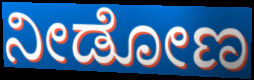
ನೀಡೋಣ